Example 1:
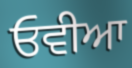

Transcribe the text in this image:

ਓਵੀਆ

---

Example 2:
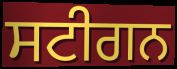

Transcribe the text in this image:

ਸਟੀਗਨ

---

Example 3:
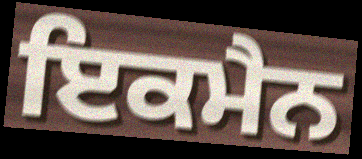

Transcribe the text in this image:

ਇਕਮੈਨ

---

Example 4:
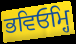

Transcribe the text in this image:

ਭਵਿਓਮ੍ਹਿ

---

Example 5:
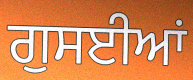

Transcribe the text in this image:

ਗੁਸਈਆਂ